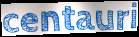
centauri